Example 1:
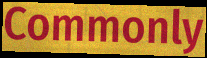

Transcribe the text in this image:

Commonly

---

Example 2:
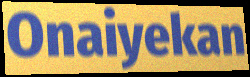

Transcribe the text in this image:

Onaiyekan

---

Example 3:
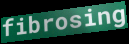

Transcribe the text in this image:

fibrosing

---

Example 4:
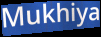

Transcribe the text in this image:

Mukhiya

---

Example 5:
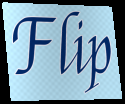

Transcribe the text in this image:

Flip